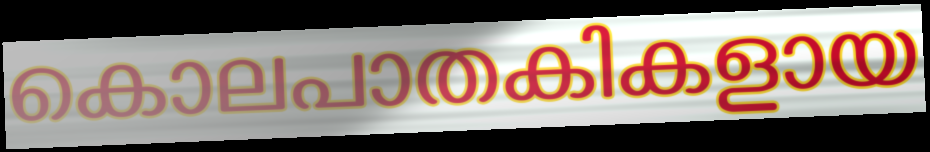
കൊലപാതകികളായ